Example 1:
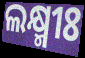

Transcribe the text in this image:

ଲକ୍ଷ୍ମୀଃ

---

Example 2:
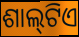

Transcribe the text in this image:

ଶାଲ୍‌ଟିଏ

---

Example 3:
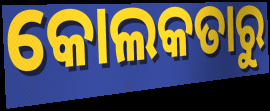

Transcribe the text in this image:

କୋଲକତାରୁ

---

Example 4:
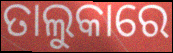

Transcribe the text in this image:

ତାଲୁକାରେ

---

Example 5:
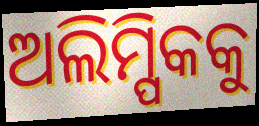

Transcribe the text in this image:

ଅଲିମ୍ପିକକୁ